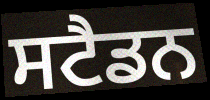
ਸਟੈਡਨ